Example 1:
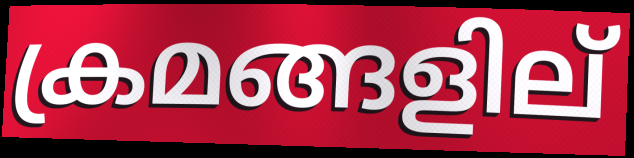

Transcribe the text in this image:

ക്രമങ്ങളില്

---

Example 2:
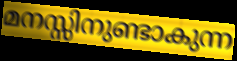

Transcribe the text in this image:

മനസ്സിനുണ്ടാകുന്ന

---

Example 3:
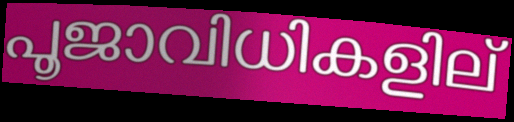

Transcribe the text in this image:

പൂജാവിധികളില്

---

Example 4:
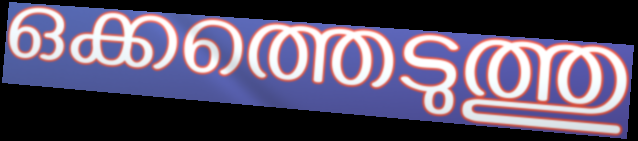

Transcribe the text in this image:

ഒക്കത്തെടുത്തു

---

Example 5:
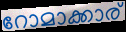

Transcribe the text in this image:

റോമാക്കാര്